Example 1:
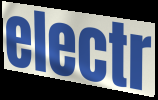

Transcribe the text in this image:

electr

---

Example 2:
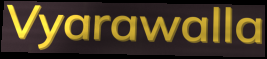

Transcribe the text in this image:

Vyarawalla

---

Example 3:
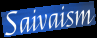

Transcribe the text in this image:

Saivaism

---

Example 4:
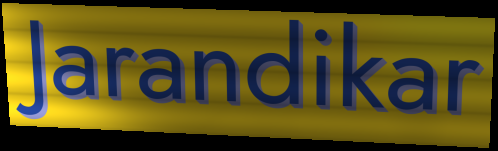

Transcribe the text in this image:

Jarandikar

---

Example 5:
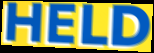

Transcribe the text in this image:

HELD